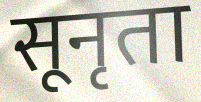
सूनृता